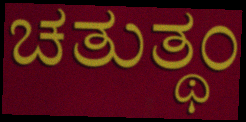
ಚತುತ್ಥಂ